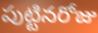
పుట్టినరోజు